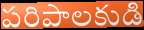
పరిపాలకుడి